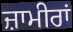
ਜ਼ਾਮੀਰਾਂ